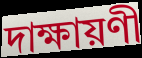
দাক্ষায়ণী